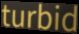
turbid